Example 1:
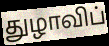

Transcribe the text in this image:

துழாவிப்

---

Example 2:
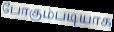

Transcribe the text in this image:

போகும்படியாக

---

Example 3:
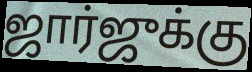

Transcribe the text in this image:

ஜார்ஜுக்கு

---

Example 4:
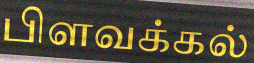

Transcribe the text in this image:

பிளவக்கல்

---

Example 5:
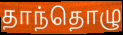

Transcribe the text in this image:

தாந்தொழு